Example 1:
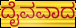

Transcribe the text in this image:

ದೈವವಾದ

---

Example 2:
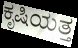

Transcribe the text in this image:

ಕೃಷಿಯತ್ತ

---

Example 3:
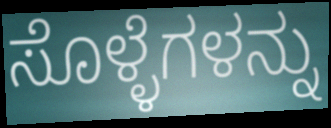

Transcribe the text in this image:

ಸೊಳ್ಳೆಗಳನ್ನು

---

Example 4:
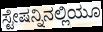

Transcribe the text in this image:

ಸ್ಟೇಷನ್ನಿನಲ್ಲಿಯೂ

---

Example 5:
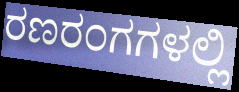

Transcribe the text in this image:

ರಣರಂಗಗಳಲ್ಲಿ